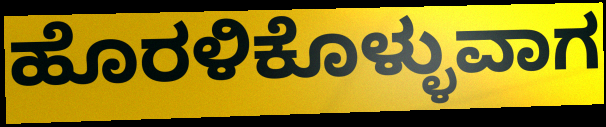
ಹೊರಳಿಕೊಳ್ಳುವಾಗ